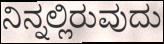
ನಿನ್ನಲ್ಲಿರುವುದು